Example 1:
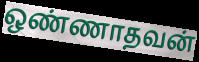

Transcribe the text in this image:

ஒண்ணாதவன்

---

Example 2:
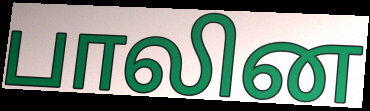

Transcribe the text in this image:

பாலின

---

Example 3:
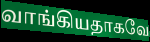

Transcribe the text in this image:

வாங்கியதாகவே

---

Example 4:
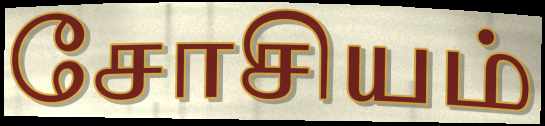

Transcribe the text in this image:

சோசியம்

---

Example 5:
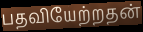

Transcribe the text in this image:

பதவியேற்றதன்